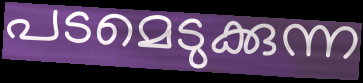
പടമെടുക്കുന്ന